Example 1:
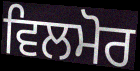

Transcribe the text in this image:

ਵਿਲਮੋਰ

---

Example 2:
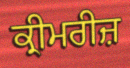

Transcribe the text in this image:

ਕ੍ਰੀਮਰੀਜ਼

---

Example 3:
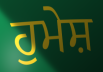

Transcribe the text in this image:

ਹੁਮੇਸ਼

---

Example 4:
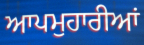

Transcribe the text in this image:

ਆਪਮੁਹਾਰੀਆਂ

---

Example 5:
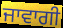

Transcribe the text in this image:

ਜਾਵਾਗੀ